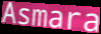
Asmara